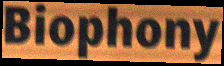
Biophony